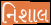
નિશાલ